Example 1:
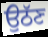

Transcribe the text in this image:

ਉਠੱਣ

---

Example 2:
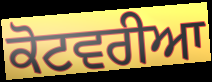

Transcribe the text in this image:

ਕੋਟਵਰੀਆ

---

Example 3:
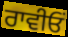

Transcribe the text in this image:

ਰਾਵੀਓਂ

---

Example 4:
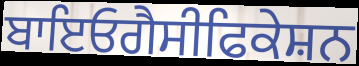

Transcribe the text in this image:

ਬਾਇਓਗੈਸੀਫਿਕੇਸ਼ਨ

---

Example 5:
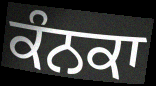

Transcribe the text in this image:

ਕੰਨਕਾ